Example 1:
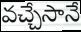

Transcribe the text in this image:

వచ్చేసానే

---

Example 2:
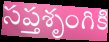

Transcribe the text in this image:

సప్తశృంగికి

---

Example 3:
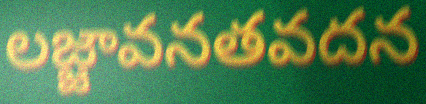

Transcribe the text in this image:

లజ్జావనతవదన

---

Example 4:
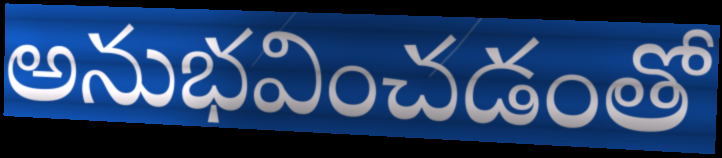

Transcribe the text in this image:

అనుభవించడంతో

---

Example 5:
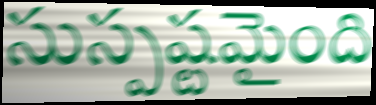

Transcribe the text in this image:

సుస్పష్టమైంది